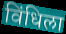
विंधिला